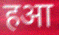
हआ